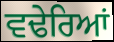
ਵਢੇਰਿਆਂ